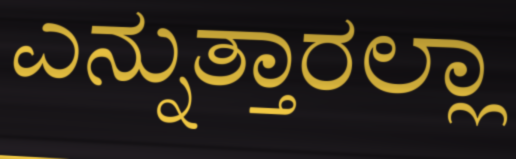
ಎನ್ನುತ್ತಾರಲ್ಲಾ